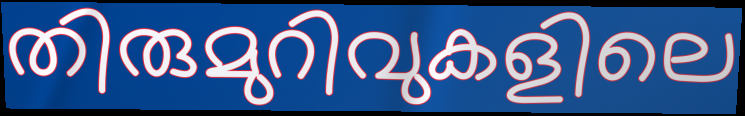
തിരുമുറിവുകളിലെ